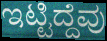
ಇಟ್ಟಿದ್ದೆವು